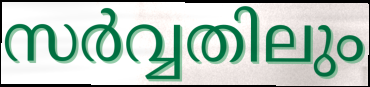
സർവ്വതിലും